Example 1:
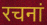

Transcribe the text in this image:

रचनां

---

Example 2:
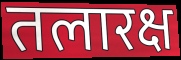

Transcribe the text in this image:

तलारक्ष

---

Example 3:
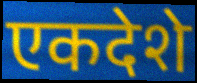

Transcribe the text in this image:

एकदेशे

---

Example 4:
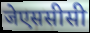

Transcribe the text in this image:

जेएससीसी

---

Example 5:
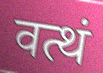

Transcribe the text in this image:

वत्थं